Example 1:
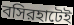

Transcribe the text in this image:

বসিরহাটেই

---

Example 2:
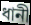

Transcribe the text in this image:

ধানী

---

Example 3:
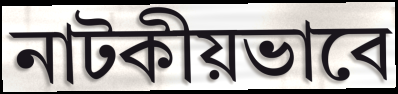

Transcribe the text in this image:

নাটকীয়ভাবে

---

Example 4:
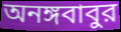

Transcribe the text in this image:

অনঙ্গবাবুর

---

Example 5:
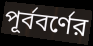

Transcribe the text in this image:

পূর্ববর্ণের